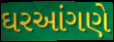
ઘરઆંગણે